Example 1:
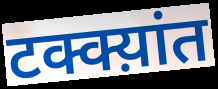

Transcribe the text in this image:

टक्क्य़ांत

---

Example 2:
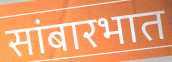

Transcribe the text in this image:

सांबारभात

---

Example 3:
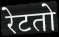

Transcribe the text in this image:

रेटतो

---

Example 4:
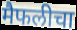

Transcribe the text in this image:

मैफलीचा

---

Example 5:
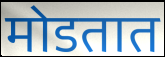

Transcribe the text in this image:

मोडतात